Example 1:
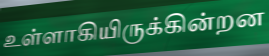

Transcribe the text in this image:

உள்ளாகியிருக்கின்றன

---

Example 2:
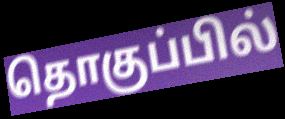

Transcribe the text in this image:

தொகுப்பில்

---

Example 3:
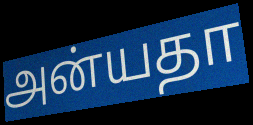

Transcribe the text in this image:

அன்யதா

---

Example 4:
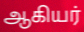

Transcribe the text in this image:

ஆகியர்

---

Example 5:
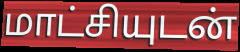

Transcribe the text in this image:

மாட்சியுடன்